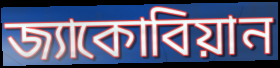
জ্যাকোবিয়ান